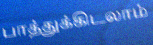
பாத்துக்கிடலாம்